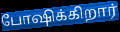
போஷிக்கிறார்